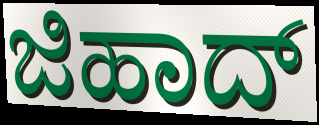
ಜಿಹಾದ್